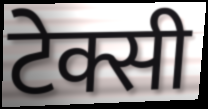
टेक्सी